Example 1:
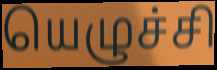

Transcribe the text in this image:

யெழுச்சி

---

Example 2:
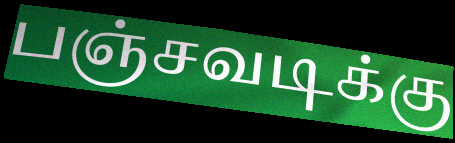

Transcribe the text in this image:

பஞ்சவடிக்கு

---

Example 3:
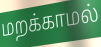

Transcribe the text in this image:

மறக்காமல்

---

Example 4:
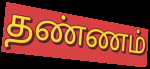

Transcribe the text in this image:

தண்ணம்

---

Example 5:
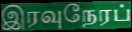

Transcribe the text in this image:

இரவுநேரப்